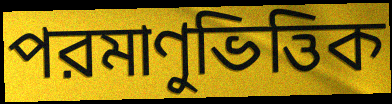
পরমাণুভিত্তিক